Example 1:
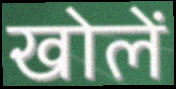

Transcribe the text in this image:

खोलें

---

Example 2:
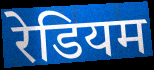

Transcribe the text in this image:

रेडियम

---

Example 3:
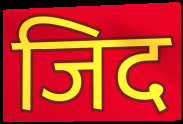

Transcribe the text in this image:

जिद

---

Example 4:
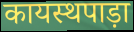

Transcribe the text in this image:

कायस्थपाड़ा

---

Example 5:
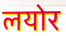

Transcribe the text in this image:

लयोर